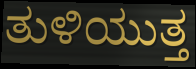
ತುಳಿಯುತ್ತ